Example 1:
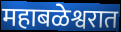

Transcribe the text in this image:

महाबळेश्वरात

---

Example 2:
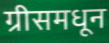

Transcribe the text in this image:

ग्रीसमधून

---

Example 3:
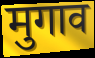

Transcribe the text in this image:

मुगाव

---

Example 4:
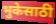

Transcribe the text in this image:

भुकेसाठी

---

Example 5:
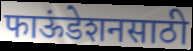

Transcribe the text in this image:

फाऊंडेशनसाठी